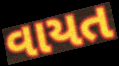
વાયત